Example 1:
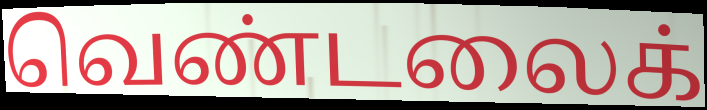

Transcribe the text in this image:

வெண்டலைக்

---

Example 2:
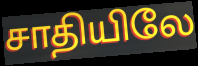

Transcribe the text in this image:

சாதியிலே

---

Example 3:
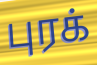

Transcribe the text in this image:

புரக்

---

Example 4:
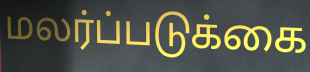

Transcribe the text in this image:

மலர்ப்படுக்கை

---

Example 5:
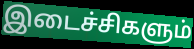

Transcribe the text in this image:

இடைச்சிகளும்